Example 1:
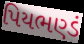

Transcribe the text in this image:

પિયભણ્ડં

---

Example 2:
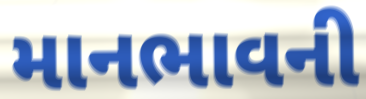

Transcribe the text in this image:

માનભાવની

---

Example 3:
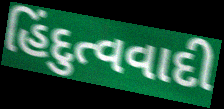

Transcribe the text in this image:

હિંદુત્વવાદી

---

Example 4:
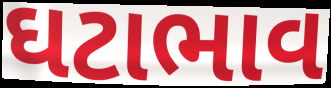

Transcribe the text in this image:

ઘટાભાવ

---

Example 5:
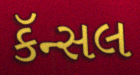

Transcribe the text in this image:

કૅન્સલ